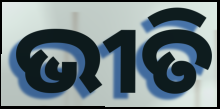
ଭୀତି